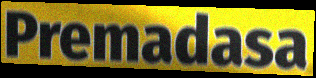
Premadasa